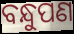
ବନ୍ଧୁପଣ